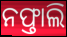
ନଫ୍ତାଲି